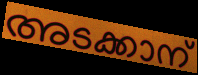
അടക്കാന്